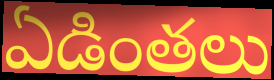
ఏడింతలు